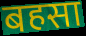
बहसा